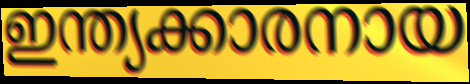
ഇന്ത്യക്കാരനായ